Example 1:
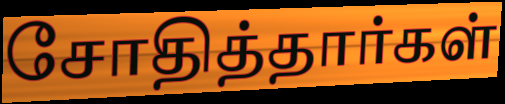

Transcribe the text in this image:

சோதித்தார்கள்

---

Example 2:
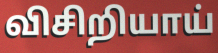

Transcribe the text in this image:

விசிறியாய்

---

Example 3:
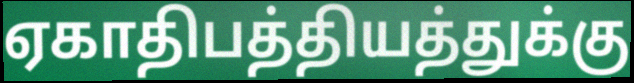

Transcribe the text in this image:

ஏகாதிபத்தியத்துக்கு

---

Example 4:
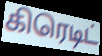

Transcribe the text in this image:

கிரெடிட்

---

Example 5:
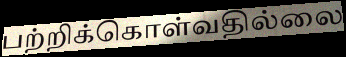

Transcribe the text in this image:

பற்றிக்கொள்வதில்லை